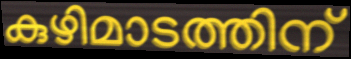
കുഴിമാടത്തിന്